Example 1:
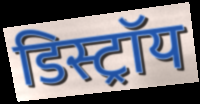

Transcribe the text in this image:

डिस्ट्रॉय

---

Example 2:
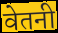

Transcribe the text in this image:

वेतनी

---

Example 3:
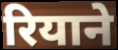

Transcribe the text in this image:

रियाने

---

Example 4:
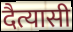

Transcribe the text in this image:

दैत्यासी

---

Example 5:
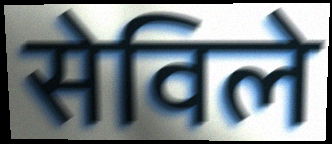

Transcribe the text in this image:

सेविले